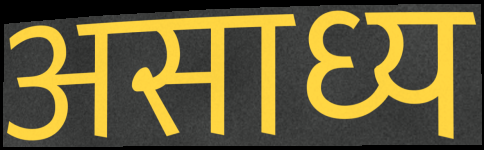
असाध्य